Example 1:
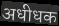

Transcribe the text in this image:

अधीधक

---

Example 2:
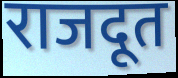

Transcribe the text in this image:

राजदूत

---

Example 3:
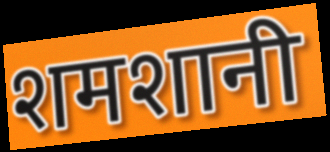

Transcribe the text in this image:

शमशानी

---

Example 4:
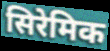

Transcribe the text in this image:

सिरेमिक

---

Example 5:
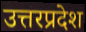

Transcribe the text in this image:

उत्तरप्रदेश